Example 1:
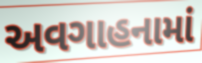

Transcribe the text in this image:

અવગાહનામાં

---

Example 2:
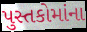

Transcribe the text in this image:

પુસ્તકોમાંના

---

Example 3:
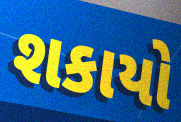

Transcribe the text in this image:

શકાયો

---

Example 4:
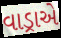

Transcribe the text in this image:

વાડ્રાએ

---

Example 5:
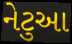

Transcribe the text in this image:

નેટુઆ